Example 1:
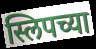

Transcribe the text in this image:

स्लिपच्या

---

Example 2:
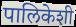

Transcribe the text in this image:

पालिकेशी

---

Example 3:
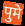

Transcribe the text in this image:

पुमे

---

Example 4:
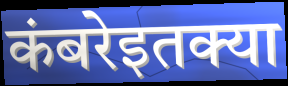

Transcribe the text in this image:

कंबरेइतक्या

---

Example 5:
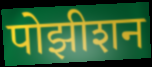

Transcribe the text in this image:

पोझीशन